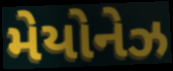
મેયોનેઝ